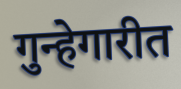
गुन्हेगारीत